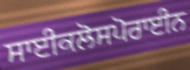
ਸਾਈਕਲੋਸਪੋਰਾਈਨ